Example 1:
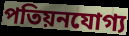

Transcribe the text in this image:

পতিয়নযোগ্য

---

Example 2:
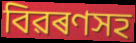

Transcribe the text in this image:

বিৱৰণসহ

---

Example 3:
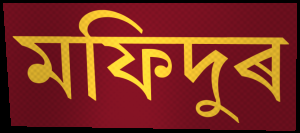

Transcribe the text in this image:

মফিদুৰ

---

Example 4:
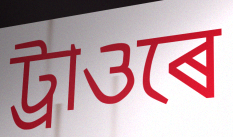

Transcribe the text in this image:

ট্ৰাওৰে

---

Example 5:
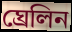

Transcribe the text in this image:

ঘ্ৰেলিন